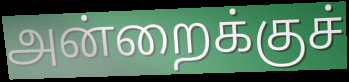
அன்றைக்குச்